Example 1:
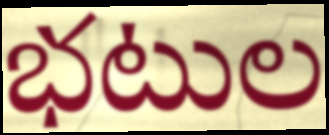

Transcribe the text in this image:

భటుల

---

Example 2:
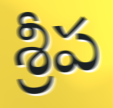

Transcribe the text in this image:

శ్రీప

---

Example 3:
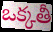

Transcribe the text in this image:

ఒక్కతీ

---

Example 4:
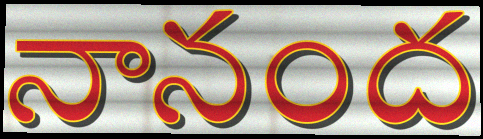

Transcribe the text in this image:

నానంద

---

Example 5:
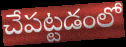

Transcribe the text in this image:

చేపట్టడంలో